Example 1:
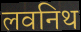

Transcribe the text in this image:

लवनिथ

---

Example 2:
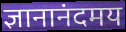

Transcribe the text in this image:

ज्ञानानंदमय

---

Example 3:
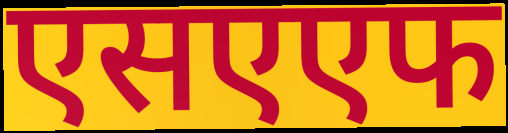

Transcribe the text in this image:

एसएएफ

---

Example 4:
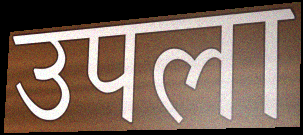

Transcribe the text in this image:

उपला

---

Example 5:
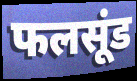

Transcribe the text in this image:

फलसूंड